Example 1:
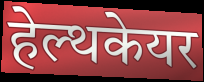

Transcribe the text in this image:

हेल्थकेयर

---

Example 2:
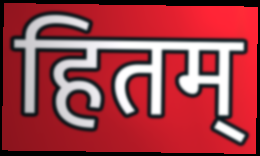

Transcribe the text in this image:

हितम्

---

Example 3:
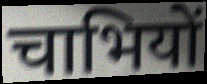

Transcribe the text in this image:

चाभियों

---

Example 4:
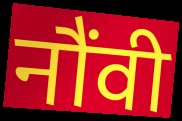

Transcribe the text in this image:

नौंवी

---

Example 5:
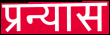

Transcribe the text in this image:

प्रन्यास